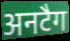
अनटैग